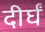
दीर्घं